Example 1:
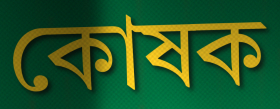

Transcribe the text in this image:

কোষক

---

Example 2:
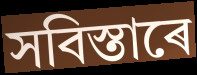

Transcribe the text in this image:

সবিস্তাৰে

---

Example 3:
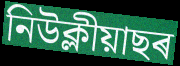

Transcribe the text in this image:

নিউক্লীয়াছৰ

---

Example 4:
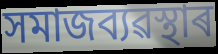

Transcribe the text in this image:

সমাজব্যৱস্থাৰ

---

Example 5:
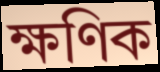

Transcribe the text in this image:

ক্ষণিক